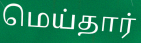
மெய்தார்